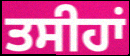
ਤਸੀਹਾਂ